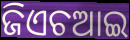
ଜିଏଚଆଇ